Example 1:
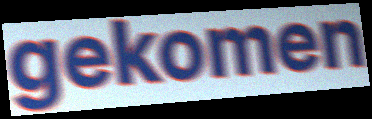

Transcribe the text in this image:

gekomen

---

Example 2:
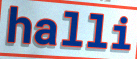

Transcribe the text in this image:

halli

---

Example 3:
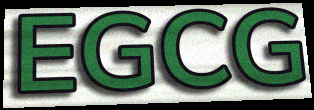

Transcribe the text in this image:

EGCG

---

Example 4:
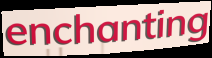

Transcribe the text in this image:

enchanting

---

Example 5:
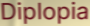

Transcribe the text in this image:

Diplopia